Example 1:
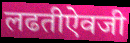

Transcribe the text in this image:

लढतीऐवजी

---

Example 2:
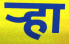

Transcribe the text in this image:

ऱ्हा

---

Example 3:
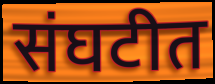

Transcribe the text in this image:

संघटीत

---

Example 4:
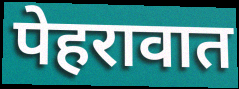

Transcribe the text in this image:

पेहरावात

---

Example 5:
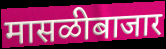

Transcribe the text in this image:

मासळीबाजार